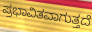
ಪ್ರಭಾವಿತವಾಗುತ್ತದೆ